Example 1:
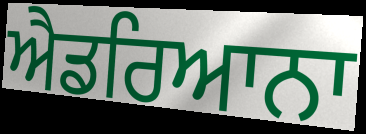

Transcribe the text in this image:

ਐਡਰਿਆਨਾ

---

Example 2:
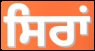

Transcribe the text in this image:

ਸਿਰਾਂ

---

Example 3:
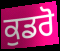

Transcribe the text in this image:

ਕੁਡਰੋ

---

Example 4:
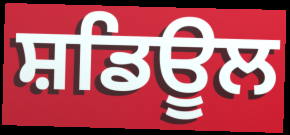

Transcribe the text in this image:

ਸ਼ਡਿਊਲ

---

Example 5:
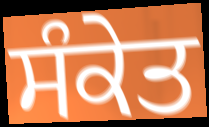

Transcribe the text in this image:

ਸੰਕੇਤ